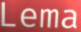
Lema